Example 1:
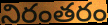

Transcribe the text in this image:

నిరంతరం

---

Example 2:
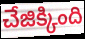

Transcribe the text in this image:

చేజిక్కింది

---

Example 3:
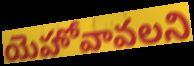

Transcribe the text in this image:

యెహోవావలని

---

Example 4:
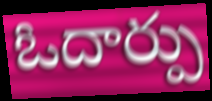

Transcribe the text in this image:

ఓదార్పు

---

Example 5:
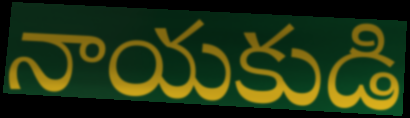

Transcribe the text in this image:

నాయకుడి